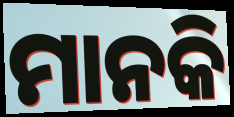
ମାନକି